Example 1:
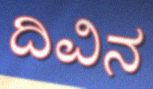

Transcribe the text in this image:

ದಿವಿನ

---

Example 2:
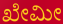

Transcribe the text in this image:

ಖೇಮೀ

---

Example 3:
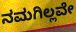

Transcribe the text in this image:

ನಮಗಿಲ್ಲವೇ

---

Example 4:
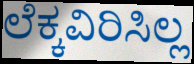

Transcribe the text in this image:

ಲೆಕ್ಕವಿರಿಸಿಲ್ಲ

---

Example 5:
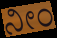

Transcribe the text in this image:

ನೀಂ